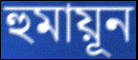
হুমায়ূন